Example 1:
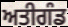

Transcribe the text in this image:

ਅਤੀਗੰਡ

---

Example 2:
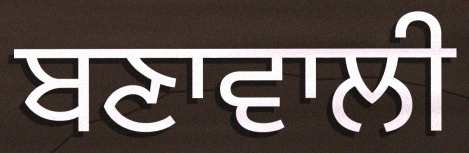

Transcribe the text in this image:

ਬਣਾਵਾਲੀ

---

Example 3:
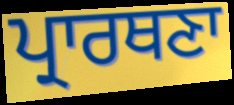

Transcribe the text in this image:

ਪ੍ਰਾਰਥਣਾ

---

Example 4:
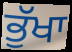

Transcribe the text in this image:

ਭੁੱਖਾ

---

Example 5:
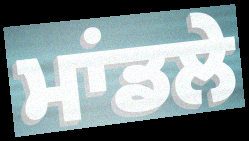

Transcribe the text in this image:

ਮਾਂਡਲੇ